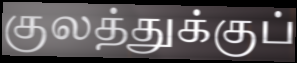
குலத்துக்குப்